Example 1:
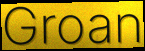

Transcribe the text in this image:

Groan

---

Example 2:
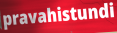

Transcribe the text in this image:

pravahistundi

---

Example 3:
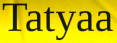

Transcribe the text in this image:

Tatyaa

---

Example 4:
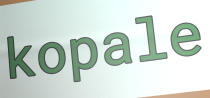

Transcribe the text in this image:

kopale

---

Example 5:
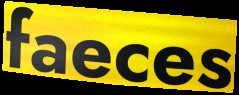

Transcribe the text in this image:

faeces